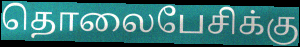
தொலைபேசிக்கு